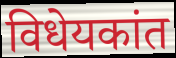
विधेयकांत